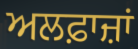
ਅਲਫ਼ਾਜ਼ਾਂ